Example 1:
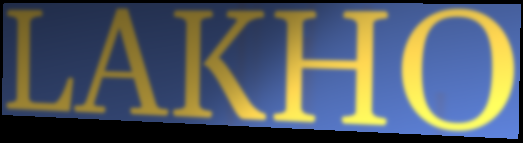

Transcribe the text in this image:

LAKHO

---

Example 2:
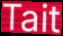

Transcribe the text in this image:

Tait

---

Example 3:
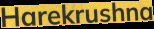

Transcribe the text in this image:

Harekrushna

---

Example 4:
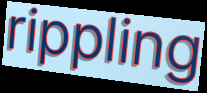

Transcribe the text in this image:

rippling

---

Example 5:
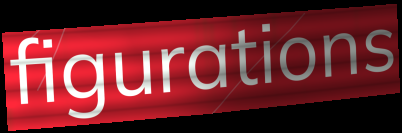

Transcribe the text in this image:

figurations